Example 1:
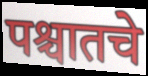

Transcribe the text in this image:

पश्चातचे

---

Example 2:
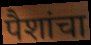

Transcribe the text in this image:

पैशांचा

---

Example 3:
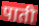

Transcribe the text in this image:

पाती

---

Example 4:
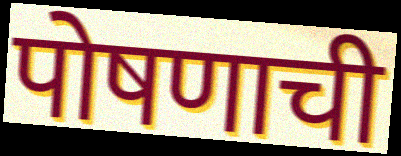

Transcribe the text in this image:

पोषणाची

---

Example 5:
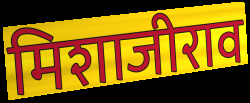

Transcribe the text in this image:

मिशाजीराव